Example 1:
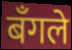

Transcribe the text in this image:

बँगले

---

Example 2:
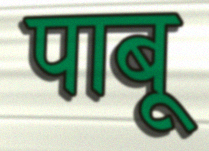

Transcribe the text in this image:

पाबू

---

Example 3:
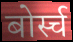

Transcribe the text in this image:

बोर्स्च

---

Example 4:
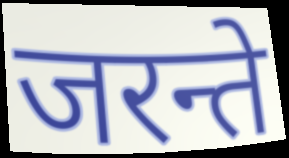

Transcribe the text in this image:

जरन्ते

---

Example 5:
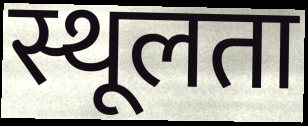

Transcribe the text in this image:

स्थूलता